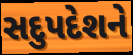
સદુપદેશને